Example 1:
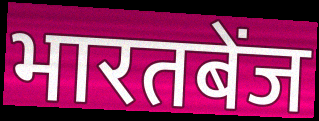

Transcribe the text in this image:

भारतबेंज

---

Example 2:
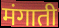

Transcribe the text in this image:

मंगाती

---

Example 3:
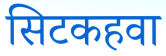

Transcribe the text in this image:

सिटकहवा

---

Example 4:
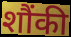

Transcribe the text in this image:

शौंकी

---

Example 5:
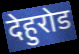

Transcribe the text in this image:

देहुरोड